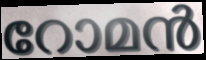
റോമൻ